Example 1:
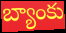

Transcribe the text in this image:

బ్యాంకు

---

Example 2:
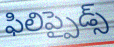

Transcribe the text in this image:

ఫిలిప్పైడ్స్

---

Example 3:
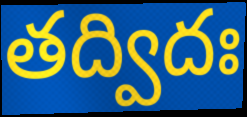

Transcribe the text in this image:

తద్విదః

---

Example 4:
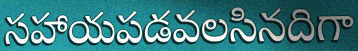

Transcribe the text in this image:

సహాయపడవలసినదిగా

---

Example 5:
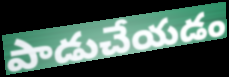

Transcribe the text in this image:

పాడుచేయడం